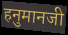
हनुमानजी